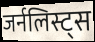
जर्नलिस्ट्स